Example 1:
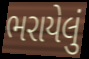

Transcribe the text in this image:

ભરાયેલું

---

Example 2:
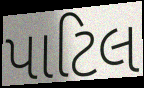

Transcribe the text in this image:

પાટિલ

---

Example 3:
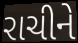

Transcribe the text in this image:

રાચીને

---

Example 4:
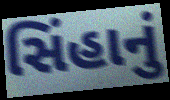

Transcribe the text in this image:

સિંહાનું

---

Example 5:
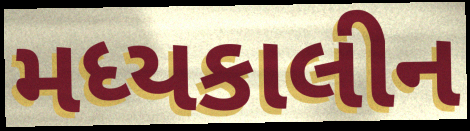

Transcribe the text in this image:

મધ્યકાલીન